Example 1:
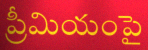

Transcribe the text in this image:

ప్రీమియంపై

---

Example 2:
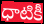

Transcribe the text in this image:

ధాటికీ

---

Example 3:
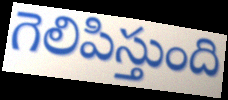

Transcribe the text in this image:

గెలిపిస్తుంది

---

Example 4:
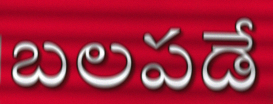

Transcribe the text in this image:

బలపడే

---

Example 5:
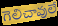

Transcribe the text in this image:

గెలిచావులే